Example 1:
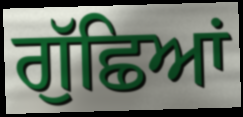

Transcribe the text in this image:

ਗੁੱਛਿਆਂ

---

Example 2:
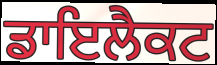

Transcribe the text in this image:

ਡਾਇਲੈਕਟ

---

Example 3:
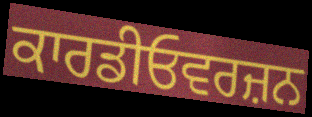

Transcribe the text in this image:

ਕਾਰਡੀਓਵਰਜ਼ਨ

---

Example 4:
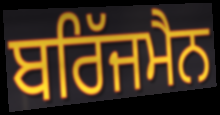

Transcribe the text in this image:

ਬਰਿੱਜਮੈਨ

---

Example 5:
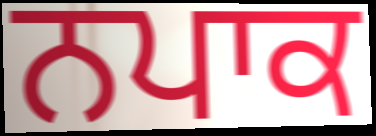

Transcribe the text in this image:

ਨਪਾਕ